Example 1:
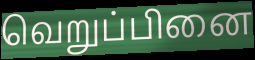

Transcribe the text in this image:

வெறுப்பினை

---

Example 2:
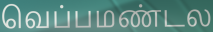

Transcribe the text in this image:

வெப்பமண்டல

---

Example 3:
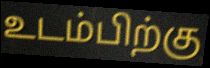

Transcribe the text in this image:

உடம்பிற்கு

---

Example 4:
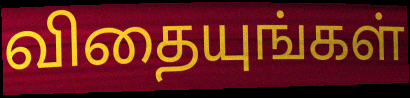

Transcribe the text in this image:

விதையுங்கள்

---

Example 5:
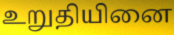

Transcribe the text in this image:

உறுதியினை